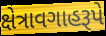
ક્ષેત્રાવગાહરૂપે